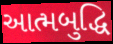
આત્મબુદ્ધિ